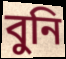
বুনি